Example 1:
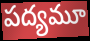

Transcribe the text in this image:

పద్యమూ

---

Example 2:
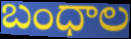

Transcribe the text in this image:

బంధాల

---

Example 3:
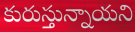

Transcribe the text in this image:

కురుస్తున్నాయని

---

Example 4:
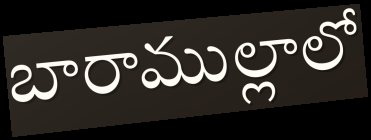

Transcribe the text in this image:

బారాముల్లాలో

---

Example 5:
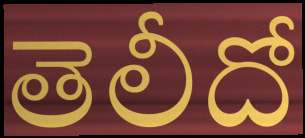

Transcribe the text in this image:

తెలీదో